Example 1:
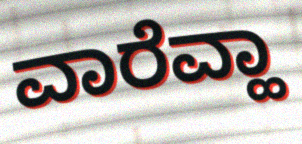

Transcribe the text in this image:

ವಾರೆವ್ಹಾ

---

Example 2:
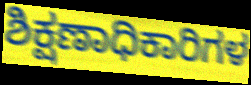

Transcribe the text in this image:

ಶಿಕ್ಷಣಾಧಿಕಾರಿಗಳ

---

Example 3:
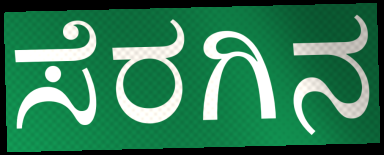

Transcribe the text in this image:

ಸೆರಗಿನ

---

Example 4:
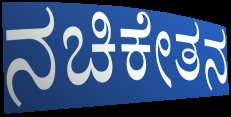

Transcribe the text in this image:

ನಚಿಕೇತನ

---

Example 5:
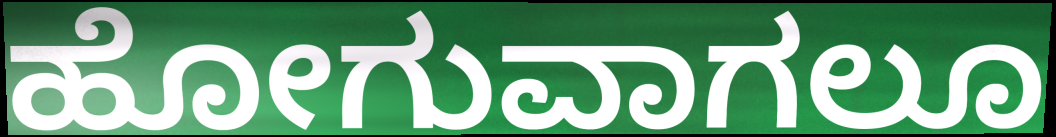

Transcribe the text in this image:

ಹೋಗುವಾಗಲೂ